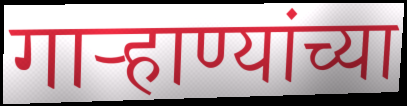
गाऱ्हाण्यांच्या